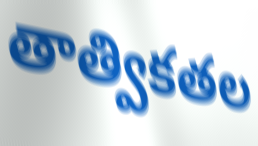
తాత్వికతల